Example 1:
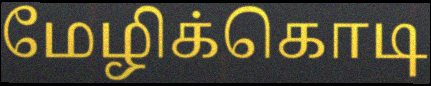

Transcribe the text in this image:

மேழிக்கொடி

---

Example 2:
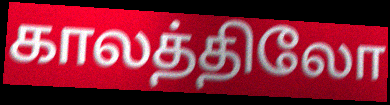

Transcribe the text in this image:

காலத்திலோ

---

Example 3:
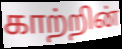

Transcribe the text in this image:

காற்றின்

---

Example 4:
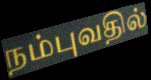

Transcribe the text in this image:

நம்புவதில்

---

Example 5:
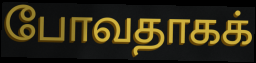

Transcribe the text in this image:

போவதாகக்